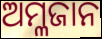
ଅମ୍ଳଜାନ